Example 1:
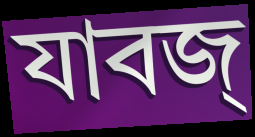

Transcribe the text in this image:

যাবজ্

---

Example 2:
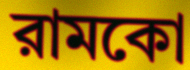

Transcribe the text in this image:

রামকো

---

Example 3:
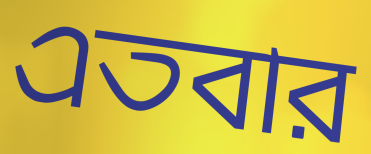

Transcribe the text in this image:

এতবার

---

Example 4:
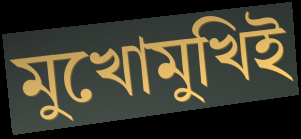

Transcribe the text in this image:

মুখোমুখিই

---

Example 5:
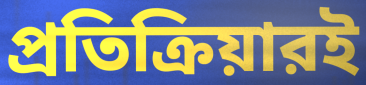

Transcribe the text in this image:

প্রতিক্রিয়ারই